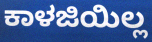
ಕಾಳಜಿಯಿಲ್ಲ